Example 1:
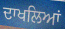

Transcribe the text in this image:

ਦਾਖਲਿਆਂ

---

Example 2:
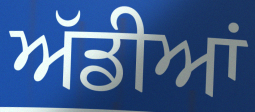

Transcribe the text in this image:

ਅੱਡੀਆਂ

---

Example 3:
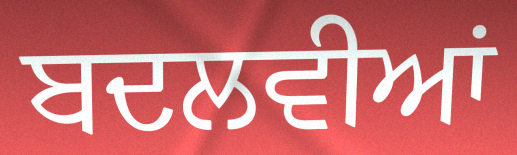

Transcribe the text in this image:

ਬਦਲਵੀਆਂ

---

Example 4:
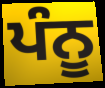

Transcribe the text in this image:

ਪੰਨੂ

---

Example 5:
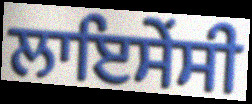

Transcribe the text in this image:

ਲਾਇਸੇਂਸੀ